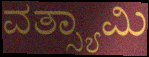
ವತ್ಸ್ಯಾಮಿ